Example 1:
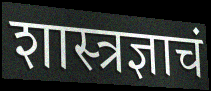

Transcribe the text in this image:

शास्त्रज्ञाचं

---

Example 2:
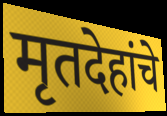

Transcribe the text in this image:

मृतदेहांचे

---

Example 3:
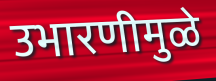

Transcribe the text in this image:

उभारणीमुळे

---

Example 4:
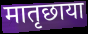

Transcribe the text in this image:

मातृछाया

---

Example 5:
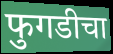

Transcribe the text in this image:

फुगडीचा